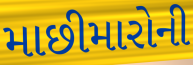
માછીમારોની